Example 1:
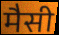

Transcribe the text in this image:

मैसी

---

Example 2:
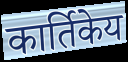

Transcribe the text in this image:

कार्तिकेय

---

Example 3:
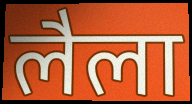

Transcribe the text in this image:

लैला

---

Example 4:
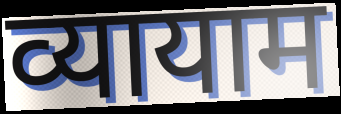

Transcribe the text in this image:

व्यायाम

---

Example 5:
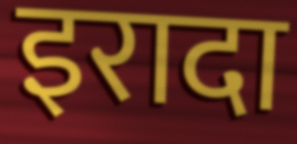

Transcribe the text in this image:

इरादा